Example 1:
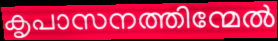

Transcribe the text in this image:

കൃപാസനത്തിന്മേൽ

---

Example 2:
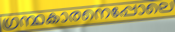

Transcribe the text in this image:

ഗ്രന്ഥകാരനെപ്പോലെ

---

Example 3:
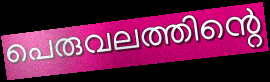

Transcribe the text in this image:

പെരുവലത്തിന്റെ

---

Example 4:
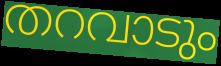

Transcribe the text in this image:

തറവാടും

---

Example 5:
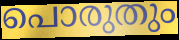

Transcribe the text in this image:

പൊരുതും